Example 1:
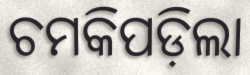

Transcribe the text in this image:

ଚମକିପଡ଼ିଲା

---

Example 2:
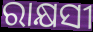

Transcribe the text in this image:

ରାକ୍ଷସୀ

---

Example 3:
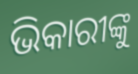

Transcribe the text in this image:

ଭିକାରୀଙ୍କୁ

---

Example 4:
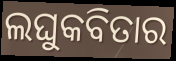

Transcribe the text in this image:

ଲଘୁକବିତାର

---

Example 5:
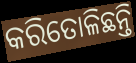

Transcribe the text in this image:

କରିତୋଳିଛନ୍ତି